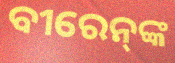
ବୀରେନ୍‍ଙ୍କ